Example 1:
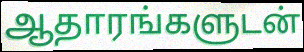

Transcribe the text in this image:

ஆதாரங்களுடன்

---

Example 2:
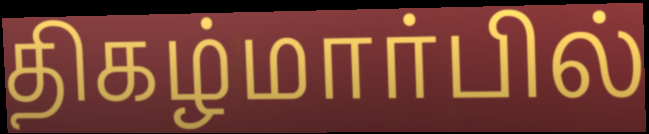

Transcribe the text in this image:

திகழ்மார்பில்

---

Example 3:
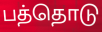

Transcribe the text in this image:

பத்தொடு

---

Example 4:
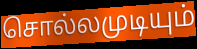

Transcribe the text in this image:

சொல்லமுடியும்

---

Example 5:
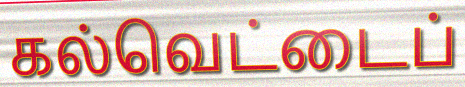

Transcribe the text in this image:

கல்வெட்டைப்